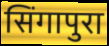
सिंगापुरा